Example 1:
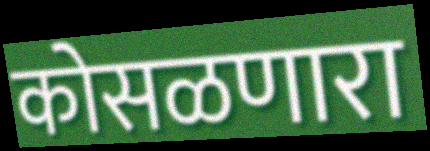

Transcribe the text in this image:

कोसळणारा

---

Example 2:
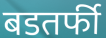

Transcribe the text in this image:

बडतर्फी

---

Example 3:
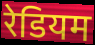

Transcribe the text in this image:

रेडियम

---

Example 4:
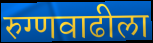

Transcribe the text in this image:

रुग्णवाढीला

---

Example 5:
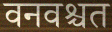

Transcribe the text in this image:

वनवश्चत